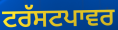
ਟਰੱਸਟਪਾਵਰ